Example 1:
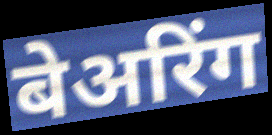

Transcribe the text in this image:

बेअरिंग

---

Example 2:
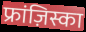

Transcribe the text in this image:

फ्रांज़िस्का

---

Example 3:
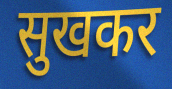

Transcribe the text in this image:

सुखकर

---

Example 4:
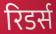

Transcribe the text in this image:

रिडर्स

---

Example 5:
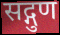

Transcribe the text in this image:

सद्गुण